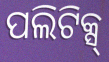
ପଲିଟିକ୍ସ୍